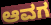
ಆವಗ